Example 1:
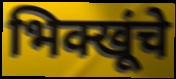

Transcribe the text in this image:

भिक्खूंचे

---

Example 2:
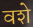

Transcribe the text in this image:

वशे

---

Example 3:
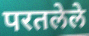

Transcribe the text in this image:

परतलेले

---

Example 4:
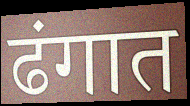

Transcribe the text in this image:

ढंगात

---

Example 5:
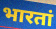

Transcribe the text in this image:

भारतां